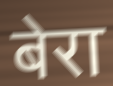
बेरा